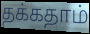
தக்கதாம்